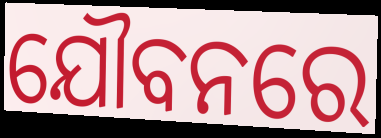
ଯୌବନରେ